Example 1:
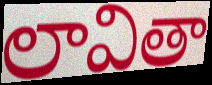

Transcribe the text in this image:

లావితా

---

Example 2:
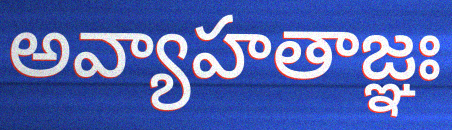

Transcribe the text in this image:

అవ్యాహతాజ్ఞః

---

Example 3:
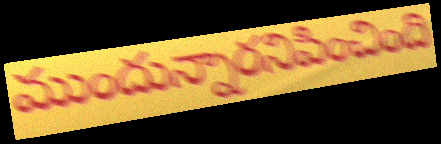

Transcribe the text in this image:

ముందున్నారనిపించింది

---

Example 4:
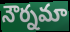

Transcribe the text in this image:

నౌర్నమా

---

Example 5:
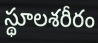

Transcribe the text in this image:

స్థూలశరీరం